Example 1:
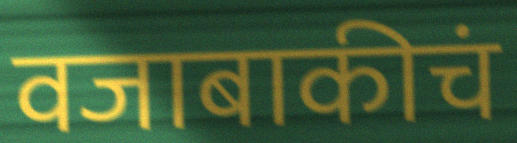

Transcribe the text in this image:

वजाबाकीचं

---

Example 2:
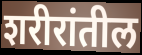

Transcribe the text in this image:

शरीरांतील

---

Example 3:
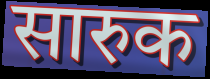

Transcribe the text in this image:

सारुक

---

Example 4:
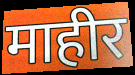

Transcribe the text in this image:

माहीर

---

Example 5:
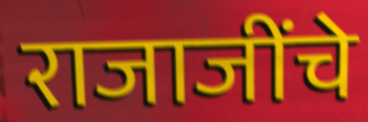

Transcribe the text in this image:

राजाजींचे